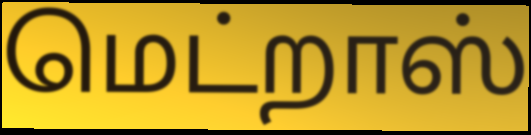
மெட்றாஸ்